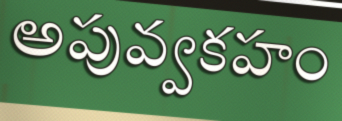
అపువ్వకహం